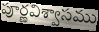
పూర్ణవిశ్వాసము